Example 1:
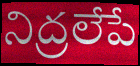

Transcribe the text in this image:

నిద్రలేపే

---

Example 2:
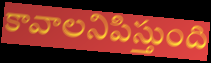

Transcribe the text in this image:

కావాలనిపిస్తుంది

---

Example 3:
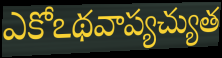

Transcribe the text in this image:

ఎకోఽథవాప్యచ్యుత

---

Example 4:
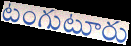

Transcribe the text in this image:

టంగుటూరు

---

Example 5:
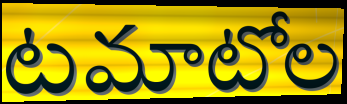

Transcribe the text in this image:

టమాటోల